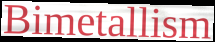
Bimetallism